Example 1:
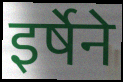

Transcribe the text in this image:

इर्षेने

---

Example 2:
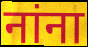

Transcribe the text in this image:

नांना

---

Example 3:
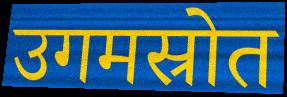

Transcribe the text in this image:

उगमस्रोत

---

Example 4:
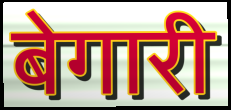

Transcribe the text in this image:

बेगारी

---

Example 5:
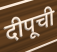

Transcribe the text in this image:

दीपूची